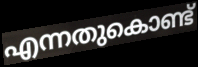
എന്നതുകൊണ്ട്